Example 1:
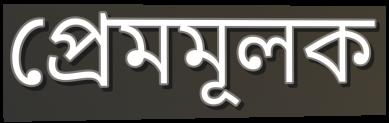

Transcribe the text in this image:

প্ৰেমমূলক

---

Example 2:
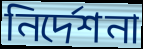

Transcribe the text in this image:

নিৰ্দেশনা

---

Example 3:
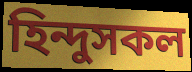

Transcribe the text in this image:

হিন্দুসকল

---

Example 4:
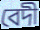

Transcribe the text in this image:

বেদী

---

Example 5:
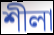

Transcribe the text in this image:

শীলা